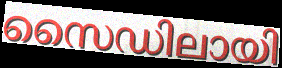
സൈഡിലായി